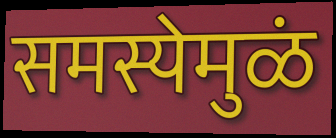
समस्येमुळं